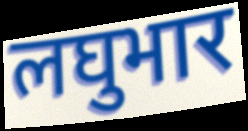
लघुभार